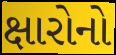
ક્ષારોનો